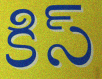
కిస్